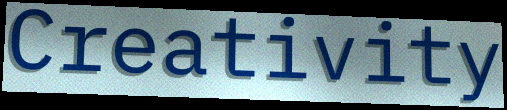
Creativity